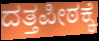
ದತ್ತಪೀಠಕ್ಕೆ